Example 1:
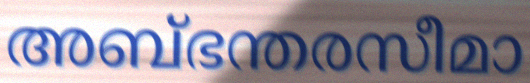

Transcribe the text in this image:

അബ്ഭന്തരസീമാ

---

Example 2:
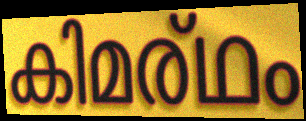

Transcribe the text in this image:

കിമര്ഥം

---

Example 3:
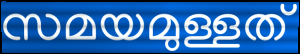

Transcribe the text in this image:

സമയമുള്ളത്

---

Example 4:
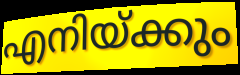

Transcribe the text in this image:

എനിയ്ക്കും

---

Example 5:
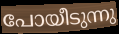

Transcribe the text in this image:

പോയീടുന്നു